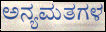
ಅನ್ಯಮತಗಳ